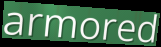
armored